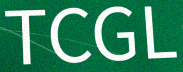
TCGL